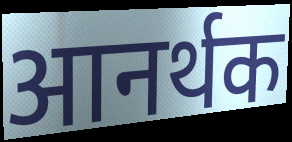
आनर्थक